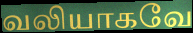
வலியாகவே